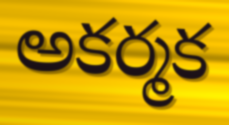
అకర్మక